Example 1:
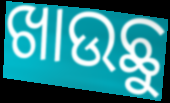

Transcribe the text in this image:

ଖାଉଛୁ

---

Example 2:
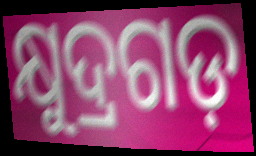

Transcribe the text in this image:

କ୍ଷୁଦ୍ରଗଡ଼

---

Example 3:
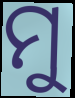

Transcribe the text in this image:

ମୁ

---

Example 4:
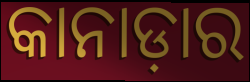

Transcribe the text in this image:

କାନାଡ଼ାର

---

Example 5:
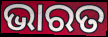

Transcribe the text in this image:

ଭାରତ